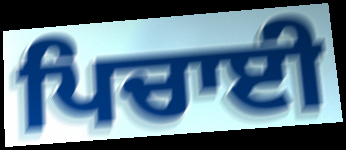
ਪਿਚਾਈ